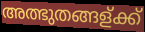
അത്ഭുതങ്ങള്ക്ക്